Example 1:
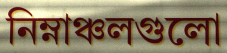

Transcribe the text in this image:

নিম্নাঞ্চলগুলো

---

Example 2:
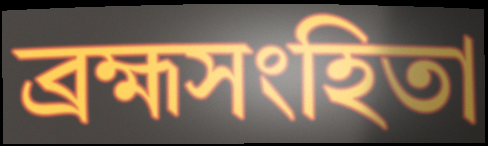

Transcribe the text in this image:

ব্রহ্মসংহিতা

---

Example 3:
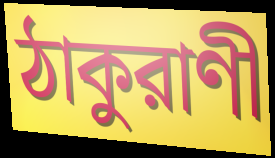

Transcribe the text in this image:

ঠাকুরাণী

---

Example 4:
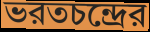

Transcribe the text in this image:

ভরতচন্দ্রের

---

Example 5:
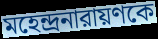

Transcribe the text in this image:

মহেন্দ্রনারায়ণকে